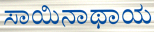
ಸಾಯಿನಾಥಾಯ